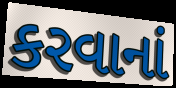
કરવાનાં